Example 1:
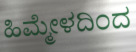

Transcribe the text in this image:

ಹಿಮ್ಮೇಳದಿಂದ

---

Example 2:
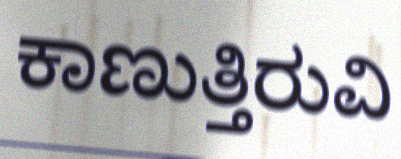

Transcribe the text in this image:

ಕಾಣುತ್ತಿರುವಿ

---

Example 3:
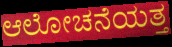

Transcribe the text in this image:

ಆಲೋಚನೆಯತ್ತ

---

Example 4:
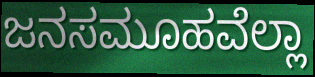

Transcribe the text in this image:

ಜನಸಮೂಹವೆಲ್ಲಾ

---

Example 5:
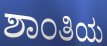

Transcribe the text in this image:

ಶಾಂತಿಯ